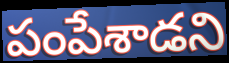
పంపేశాడని